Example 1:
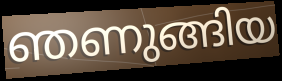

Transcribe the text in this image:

ഞണുങ്ങിയ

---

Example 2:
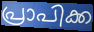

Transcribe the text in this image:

പ്രാപിക്ക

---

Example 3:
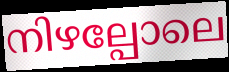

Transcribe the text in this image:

നിഴല്പോലെ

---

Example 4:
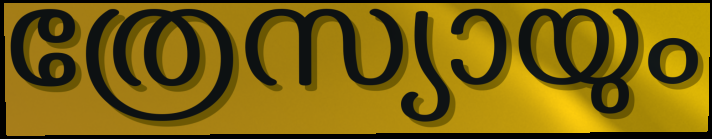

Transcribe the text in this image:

ത്രേസ്യായും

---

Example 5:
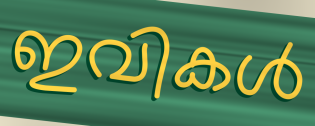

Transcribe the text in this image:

ഇവികൾ